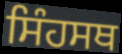
ਸਿੰਹਸਥ